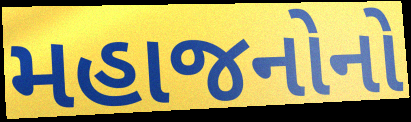
મહાજનોનો